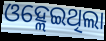
ଓହ୍ଲେଇଥିଲା